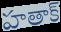
హతాక్